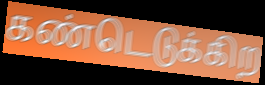
கண்டெடுக்கிற